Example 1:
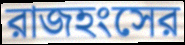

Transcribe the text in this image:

রাজহংসের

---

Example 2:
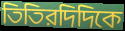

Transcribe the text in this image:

তিতিরদিদিকে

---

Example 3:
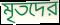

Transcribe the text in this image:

মৃতদের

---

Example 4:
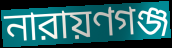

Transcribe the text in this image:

নারায়ণগঞ্জ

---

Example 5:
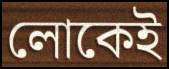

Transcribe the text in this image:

লোকেই